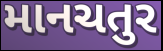
માનચતુર